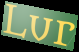
Lur